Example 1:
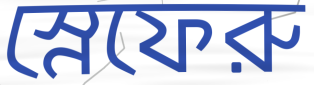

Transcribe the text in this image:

স্নেফেরু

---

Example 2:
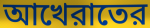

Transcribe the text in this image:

আখেরাতের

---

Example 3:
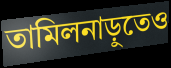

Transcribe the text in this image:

তামিলনাড়ুতেও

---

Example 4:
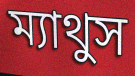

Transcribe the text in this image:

ম্যাথুস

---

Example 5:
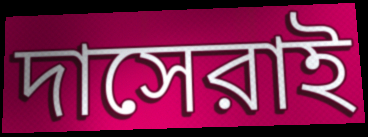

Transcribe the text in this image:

দাসেরাই